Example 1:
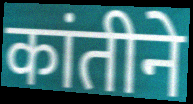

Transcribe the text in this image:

कांतीने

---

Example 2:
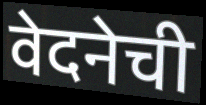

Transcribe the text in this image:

वेदनेची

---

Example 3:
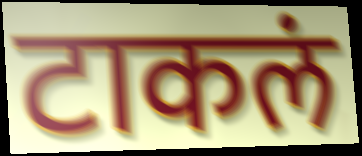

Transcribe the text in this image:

टाकलं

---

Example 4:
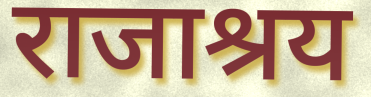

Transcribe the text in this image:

राजाश्रय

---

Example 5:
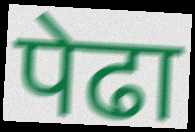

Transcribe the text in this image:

पेढा